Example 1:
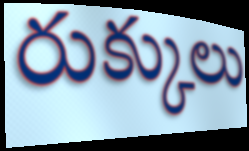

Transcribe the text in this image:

రుక్కులు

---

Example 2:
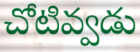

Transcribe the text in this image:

చోటివ్వడు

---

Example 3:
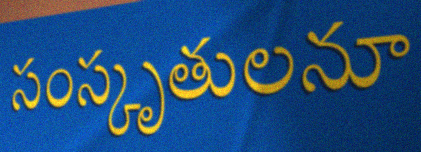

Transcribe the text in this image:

సంస్కృతులనూ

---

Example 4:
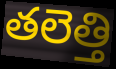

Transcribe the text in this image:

తలెత్తి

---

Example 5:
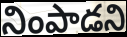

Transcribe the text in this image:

నింపాడని